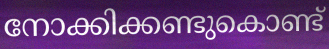
നോക്കിക്കണ്ടുകൊണ്ട്